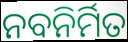
ନବନିର୍ମିତ